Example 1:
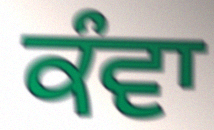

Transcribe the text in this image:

ਕੰਵਾ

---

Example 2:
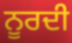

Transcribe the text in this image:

ਨੂਰਦੀ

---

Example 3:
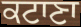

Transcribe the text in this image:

ਕਟਾਣਾ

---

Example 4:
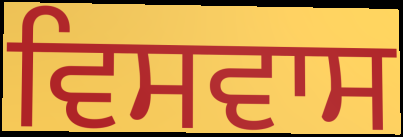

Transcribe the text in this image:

ਵਿਸਵਾਸ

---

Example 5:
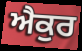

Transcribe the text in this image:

ਐਕੁਰ